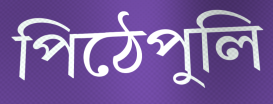
পিঠেপুলি